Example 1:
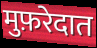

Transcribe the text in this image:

मुफ़रेदात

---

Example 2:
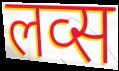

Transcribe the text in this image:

लव्स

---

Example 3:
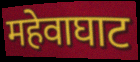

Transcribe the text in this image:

महेवाघाट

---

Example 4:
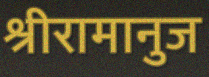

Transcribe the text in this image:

श्रीरामानुज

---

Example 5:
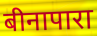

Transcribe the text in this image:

बीनापारा